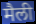
मैली